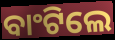
ବାଂଟିଲେ